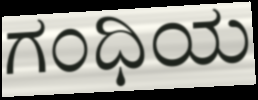
ಗಂಧಿಯ